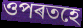
ওপৰতহে